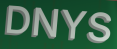
DNYS